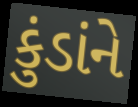
કુંડાંને